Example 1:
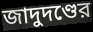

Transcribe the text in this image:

জাদুদণ্ডের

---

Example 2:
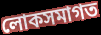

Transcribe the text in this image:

লোকসমাগত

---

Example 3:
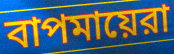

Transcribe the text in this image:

বাপমায়েরা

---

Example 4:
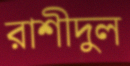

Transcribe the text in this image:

রাশীদুল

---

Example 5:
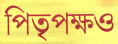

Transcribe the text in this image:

পিতৃপক্ষও